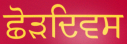
ਛੋੜਦਿਵਸ